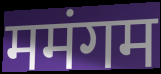
ममंगम